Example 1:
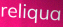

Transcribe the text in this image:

reliqua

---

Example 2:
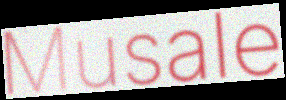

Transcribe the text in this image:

Musale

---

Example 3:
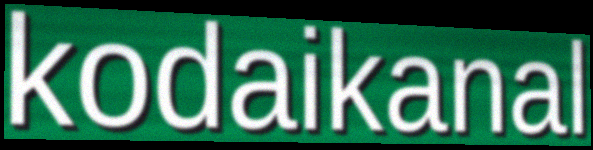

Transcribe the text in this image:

kodaikanal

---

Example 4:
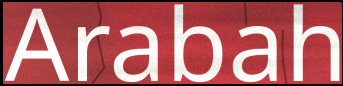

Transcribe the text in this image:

Arabah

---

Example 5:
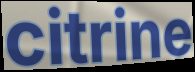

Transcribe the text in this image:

citrine